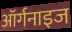
ऑर्गनाइज